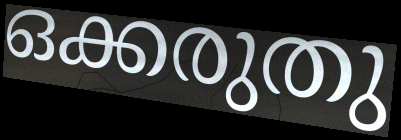
ഒക്കരുതു